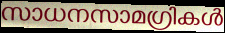
സാധനസാമഗ്രികൾ